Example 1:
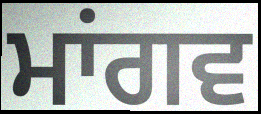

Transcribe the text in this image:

ਮਾਂਗਵ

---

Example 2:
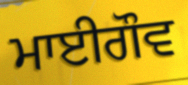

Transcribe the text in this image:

ਮਾਈਗੌਵ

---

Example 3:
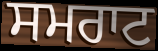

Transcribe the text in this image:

ਸਮਰਾਟ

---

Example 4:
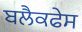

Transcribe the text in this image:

ਬਲੈਕਫੇਸ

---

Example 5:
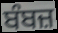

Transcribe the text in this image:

ਬੰਬਜ਼